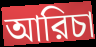
আরিচা